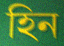
হিন